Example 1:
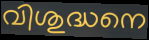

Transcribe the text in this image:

വിശുദ്ധനെ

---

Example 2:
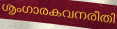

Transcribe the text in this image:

ശൃംഗാരകവനരീതി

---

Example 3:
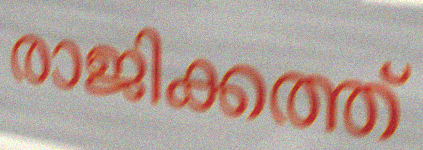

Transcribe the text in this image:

രാജിക്കത്ത്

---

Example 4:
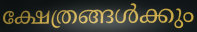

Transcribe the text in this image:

ക്ഷേത്രങ്ങൾക്കും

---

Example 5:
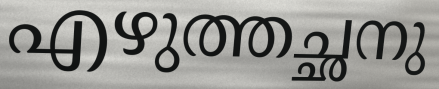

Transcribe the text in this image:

എഴുത്തച്ഛനു